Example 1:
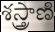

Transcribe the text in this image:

శస్త్రాణి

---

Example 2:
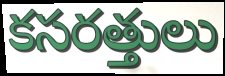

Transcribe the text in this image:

కసరత్తులు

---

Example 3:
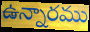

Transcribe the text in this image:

ఉన్నారము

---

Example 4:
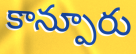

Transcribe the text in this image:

కాన్పూరు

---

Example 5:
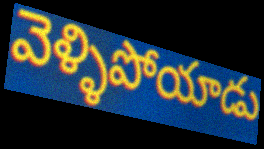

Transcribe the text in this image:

వెళ్ళిపోయాడు